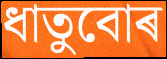
ধাতুবোৰ